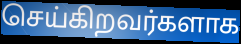
செய்கிறவர்களாக